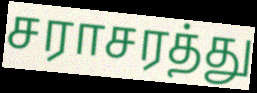
சராசரத்து